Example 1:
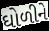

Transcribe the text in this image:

ઘોળીને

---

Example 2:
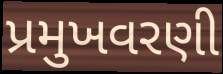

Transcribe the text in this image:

પ્રમુખવરણી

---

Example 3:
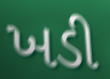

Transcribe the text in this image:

ખડી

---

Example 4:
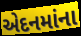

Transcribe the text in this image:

એદનમાંના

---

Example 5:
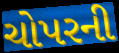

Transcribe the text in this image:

ચોપરની